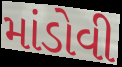
માંડોવી